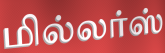
மில்லர்ஸ்